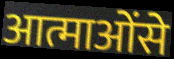
आत्माओंसे